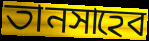
তানসাহেব